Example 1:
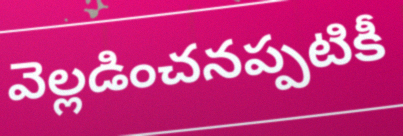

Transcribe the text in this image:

వెల్లడించనప్పటికీ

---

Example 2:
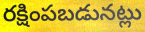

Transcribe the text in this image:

రక్షింపబడునట్లు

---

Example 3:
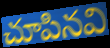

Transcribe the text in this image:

చూపినవి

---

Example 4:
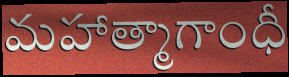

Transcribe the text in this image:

మహాత్మాగాంధీ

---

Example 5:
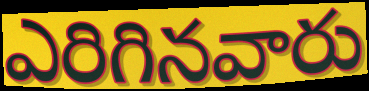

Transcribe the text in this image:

ఎరిగినవారు